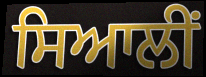
ਸਿਆਲੀਂ